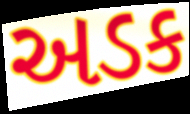
અડક